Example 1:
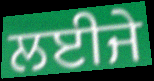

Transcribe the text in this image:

ਲਈਜੇ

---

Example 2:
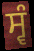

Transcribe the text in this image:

ਸ੍ਵੰ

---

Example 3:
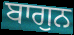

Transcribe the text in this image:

ਬਾਗੁਨ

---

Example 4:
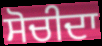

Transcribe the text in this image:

ਸੋਚੀਦਾ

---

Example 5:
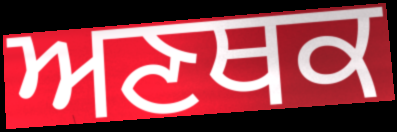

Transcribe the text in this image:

ਅਣਥਕ